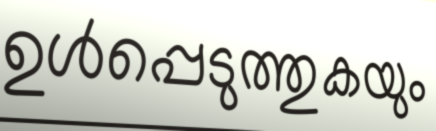
ഉൾപ്പെടുത്തുകയും